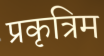
प्रकृत्रिम